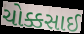
ચોક્કસાઈ